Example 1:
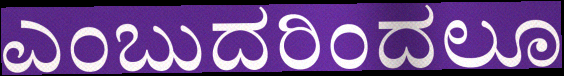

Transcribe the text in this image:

ಎಂಬುದರಿಂದಲೂ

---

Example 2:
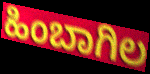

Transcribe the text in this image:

ಹಿಂಬಾಗಿಲ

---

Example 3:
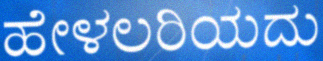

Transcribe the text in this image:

ಹೇಳಲರಿಯದು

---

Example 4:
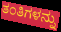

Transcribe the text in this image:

ತಂತಿಗಳನ್ನು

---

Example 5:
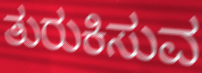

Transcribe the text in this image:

ತುರುಕಿಸುವ